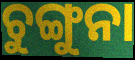
ଚୁଙ୍ଗୁନା